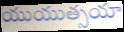
యుయుత్సయా